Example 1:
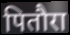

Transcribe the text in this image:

पितौरा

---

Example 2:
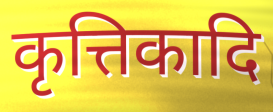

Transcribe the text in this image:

कृत्तिकादि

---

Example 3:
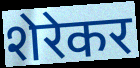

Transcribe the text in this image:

शेरेकर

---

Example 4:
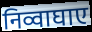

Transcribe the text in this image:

निव्वाघाए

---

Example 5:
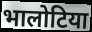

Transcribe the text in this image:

भालोटिया